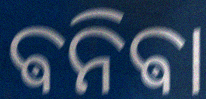
ଵନିଵା